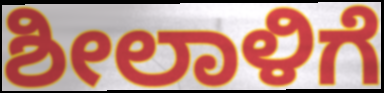
ಶೀಲಾಳಿಗೆ